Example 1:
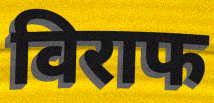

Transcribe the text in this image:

विराफ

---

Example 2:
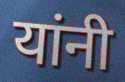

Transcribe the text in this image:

यांनी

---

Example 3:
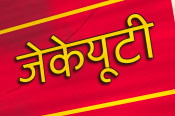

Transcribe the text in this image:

जेकेयूटी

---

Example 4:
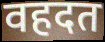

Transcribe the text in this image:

वहदत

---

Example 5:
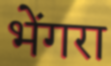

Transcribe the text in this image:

भेंगरा